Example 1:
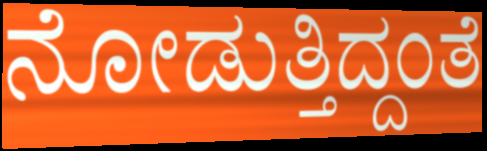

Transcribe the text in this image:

ನೋಡುತ್ತಿದ್ದಂತೆ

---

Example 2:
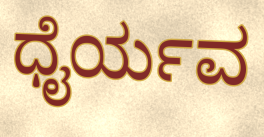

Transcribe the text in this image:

ಧೈರ್ಯವ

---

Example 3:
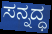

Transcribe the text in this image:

ಸನ್ನದ್ಧ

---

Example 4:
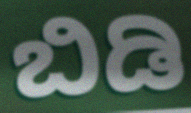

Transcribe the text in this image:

ಬಿಡಿ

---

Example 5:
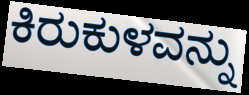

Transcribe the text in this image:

ಕಿರುಕುಳವನ್ನು